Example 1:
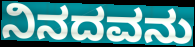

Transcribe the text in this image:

ನಿನದವನು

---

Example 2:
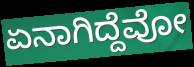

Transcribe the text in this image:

ಏನಾಗಿದ್ದೆವೋ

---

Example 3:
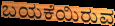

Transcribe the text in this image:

ಬಯಕೆಯಿರುವ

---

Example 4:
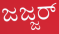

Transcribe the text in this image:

ಜಜ್ಜರ್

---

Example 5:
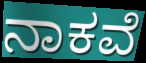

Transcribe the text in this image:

ನಾಕವೆ